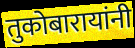
तुकोबारायांनी